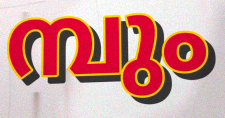
മ്പും